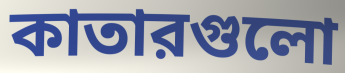
কাতারগুলো